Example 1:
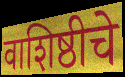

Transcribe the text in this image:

वाशिष्ठीचे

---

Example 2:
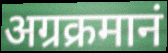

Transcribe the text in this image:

अग्रक्रमानं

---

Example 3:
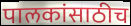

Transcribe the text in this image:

पालकांसाठीच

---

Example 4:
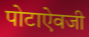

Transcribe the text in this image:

पोटाऐवजी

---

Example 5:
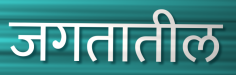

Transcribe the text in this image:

जगतातील